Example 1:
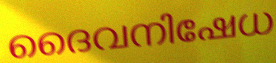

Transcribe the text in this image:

ദൈവനിഷേധ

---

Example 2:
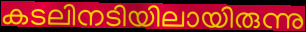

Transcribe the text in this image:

കടലിനടിയിലായിരുന്നു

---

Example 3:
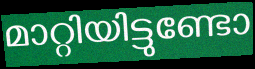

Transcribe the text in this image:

മാറ്റിയിട്ടുണ്ടോ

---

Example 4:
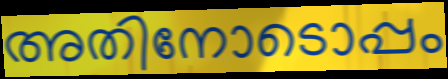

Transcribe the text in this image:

അതിനോടൊപ്പം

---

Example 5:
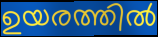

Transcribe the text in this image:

ഉയരത്തിൽ